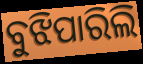
ବୁଝିପାରିଲି